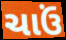
ચાઉં